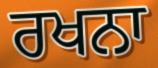
ਰਖਨਾ